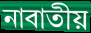
নাবাতীয়